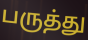
பருத்து